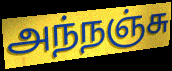
அந்நஞ்சு